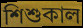
শিশুকাল